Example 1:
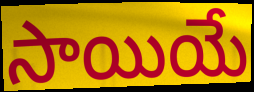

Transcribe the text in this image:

సాయియే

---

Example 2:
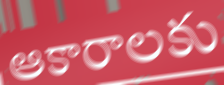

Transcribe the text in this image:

ఆకారాలకు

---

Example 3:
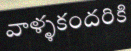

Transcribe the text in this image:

వాళ్ళకందరికి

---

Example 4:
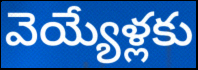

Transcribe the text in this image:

వెయ్యేళ్లకు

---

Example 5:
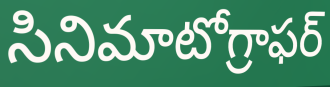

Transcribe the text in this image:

సినిమాటోగ్రాఫర్